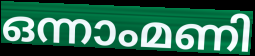
ഒന്നാംമണി